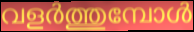
വളർത്തുമ്പോൾ